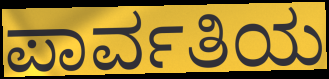
ಪಾರ್ವತಿಯ